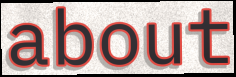
about